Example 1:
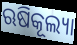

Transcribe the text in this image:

ଋଷିକୂଲ୍ୟା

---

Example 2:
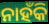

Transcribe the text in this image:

ନାହଁକି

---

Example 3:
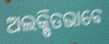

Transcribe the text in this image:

ଅଲକ୍ଷିତଭାବେ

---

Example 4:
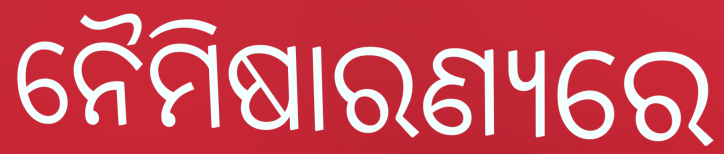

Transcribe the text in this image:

ନୈମିଷାରଣ୍ୟରେ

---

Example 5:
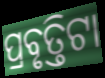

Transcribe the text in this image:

ପ୍ରବୃତ୍ତିଟା